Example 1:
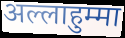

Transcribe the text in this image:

अल्लाहुम्मा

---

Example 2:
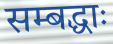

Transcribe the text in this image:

सम्बद्धाः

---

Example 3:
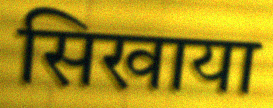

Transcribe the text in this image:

सिखाया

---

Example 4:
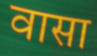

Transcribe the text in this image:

वासा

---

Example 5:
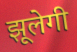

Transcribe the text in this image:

झूलेगी